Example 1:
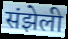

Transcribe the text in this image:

संझेली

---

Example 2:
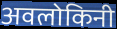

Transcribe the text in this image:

अवलोकिनी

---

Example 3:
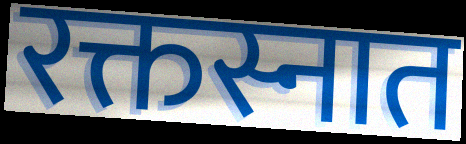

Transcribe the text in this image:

रक्तस्नात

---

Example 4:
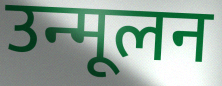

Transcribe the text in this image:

उन्मूलन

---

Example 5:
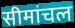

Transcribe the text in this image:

सीमांचल